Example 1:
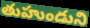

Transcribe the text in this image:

తుహుండుని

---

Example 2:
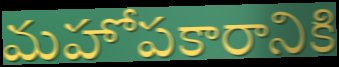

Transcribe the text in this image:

మహోపకారానికి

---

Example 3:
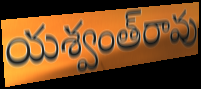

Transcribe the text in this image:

యశ్వంత్‌రావు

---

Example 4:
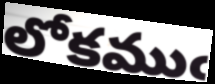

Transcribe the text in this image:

లోకముఁ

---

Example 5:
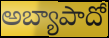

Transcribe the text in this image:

అబ్యాపాదో